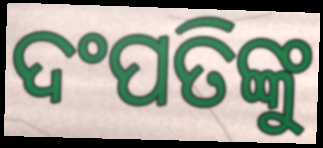
ଦଂପତିଙ୍କୁ